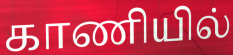
காணியில்